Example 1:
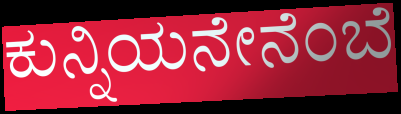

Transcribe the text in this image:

ಕುನ್ನಿಯನೇನೆಂಬೆ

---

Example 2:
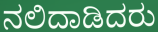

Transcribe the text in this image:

ನಲಿದಾಡಿದರು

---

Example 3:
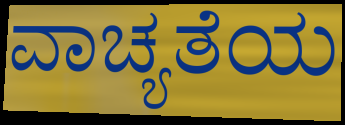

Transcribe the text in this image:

ವಾಚ್ಯತೆಯ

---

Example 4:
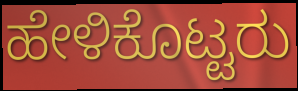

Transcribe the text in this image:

ಹೇಳಿಕೊಟ್ಟರು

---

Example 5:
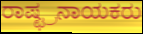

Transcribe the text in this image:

ರಾಷ್ಟ್ರನಾಯಕರು